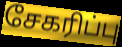
சேகரிப்பு